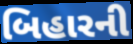
બિહારની